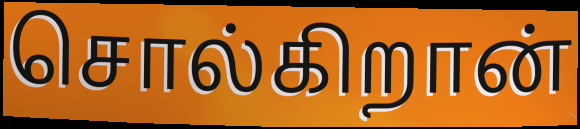
சொல்கிறான்